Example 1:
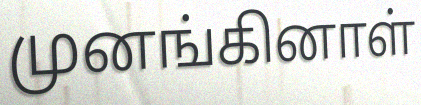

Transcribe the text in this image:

முனங்கினாள்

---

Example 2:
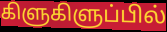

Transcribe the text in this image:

கிளுகிளுப்பில்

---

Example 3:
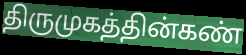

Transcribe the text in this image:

திருமுகத்தின்கண்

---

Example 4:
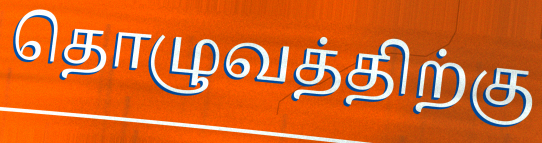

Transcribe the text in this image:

தொழுவத்திற்கு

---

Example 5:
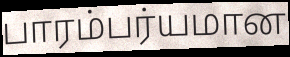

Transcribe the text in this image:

பாரம்பர்யமான